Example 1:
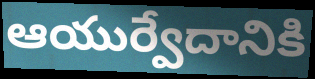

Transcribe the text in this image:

ఆయుర్వేదానికి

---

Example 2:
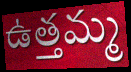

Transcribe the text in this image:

ఉత్తమ్మ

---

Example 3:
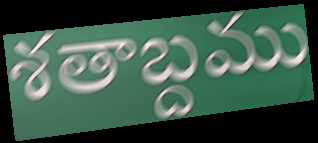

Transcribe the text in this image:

శతాబ్దము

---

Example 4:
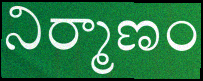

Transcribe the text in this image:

నిర్మాణం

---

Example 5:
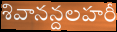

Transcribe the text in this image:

శివానన్దలహరీ